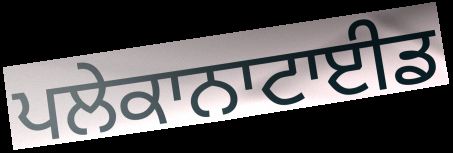
ਪਲੇਕਾਨਾਟਾਈਡ